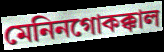
মেনিনগোকক্কাল